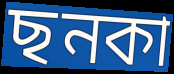
ছনকা